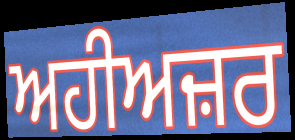
ਅਹੀਅਜ਼ਰ